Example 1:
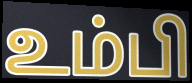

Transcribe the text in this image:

உம்பி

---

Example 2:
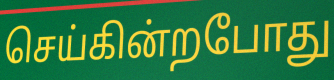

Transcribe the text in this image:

செய்கின்றபோது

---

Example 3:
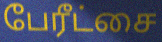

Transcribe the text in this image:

பேரீட்சை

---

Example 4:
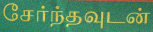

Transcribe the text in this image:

சேர்ந்தவுடன்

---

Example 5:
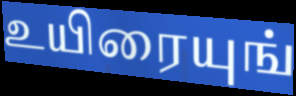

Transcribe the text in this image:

உயிரையுங்